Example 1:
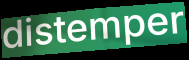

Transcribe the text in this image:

distemper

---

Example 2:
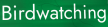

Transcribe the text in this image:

Birdwatching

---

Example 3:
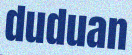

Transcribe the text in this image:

duduan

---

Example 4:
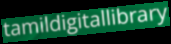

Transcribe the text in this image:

tamildigitallibrary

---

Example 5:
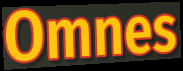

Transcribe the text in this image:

Omnes